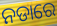
ନଡାରେ